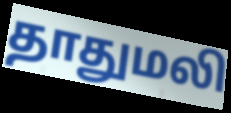
தாதுமலி